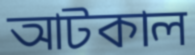
আটকাল